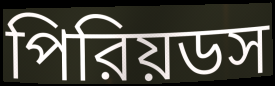
পিরিয়ডস